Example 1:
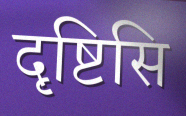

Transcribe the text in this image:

दृष्टिसि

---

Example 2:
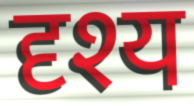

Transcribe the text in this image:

दृश्य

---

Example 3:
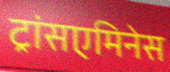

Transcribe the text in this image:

ट्रांसएमिनेस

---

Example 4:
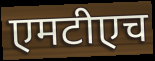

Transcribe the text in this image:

एमटीएच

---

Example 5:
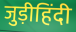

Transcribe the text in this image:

जुड़ीहिंदी